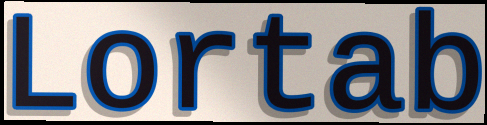
Lortab